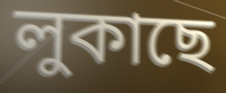
লুকাছে